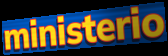
ministerio